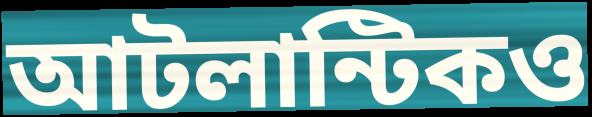
আটলান্টিকও